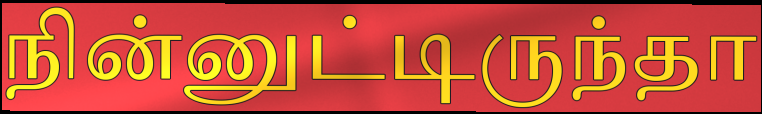
நின்னுட்டிருந்தா